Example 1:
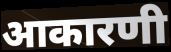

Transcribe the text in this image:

आकारणी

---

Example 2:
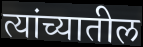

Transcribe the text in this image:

त्यांच्यातील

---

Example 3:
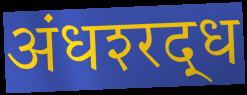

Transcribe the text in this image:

अंधश्रद्ध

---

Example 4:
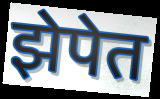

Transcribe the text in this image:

झेपेत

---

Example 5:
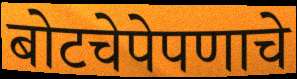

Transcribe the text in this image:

बोटचेपेपणाचे